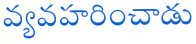
వ్యవహరించాడు